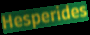
Hesperides